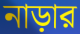
নাড়ার